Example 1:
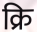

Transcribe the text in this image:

क्रि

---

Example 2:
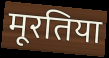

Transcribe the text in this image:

मूरतिया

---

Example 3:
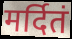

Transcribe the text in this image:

मर्दितं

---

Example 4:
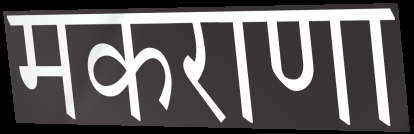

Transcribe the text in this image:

मकराणा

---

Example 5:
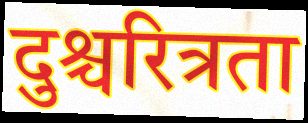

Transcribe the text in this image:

दुश्चरित्रता